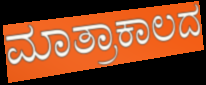
ಮಾತ್ರಾಕಾಲದ